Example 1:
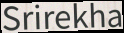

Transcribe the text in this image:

Srirekha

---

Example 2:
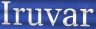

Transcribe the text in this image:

Iruvar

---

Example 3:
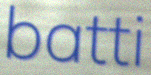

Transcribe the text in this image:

batti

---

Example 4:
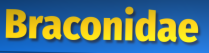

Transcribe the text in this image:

Braconidae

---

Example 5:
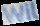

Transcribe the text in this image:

Wil